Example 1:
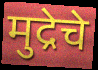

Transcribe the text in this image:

मुद्रेचे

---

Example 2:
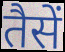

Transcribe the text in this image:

तैसें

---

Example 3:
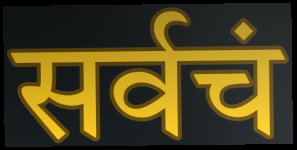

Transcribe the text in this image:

सर्वचं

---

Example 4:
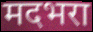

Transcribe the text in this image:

मदभरा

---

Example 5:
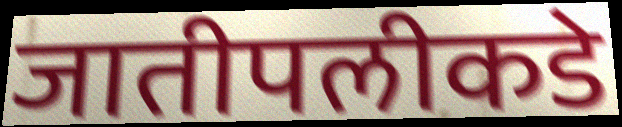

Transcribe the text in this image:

जातीपलीकडे